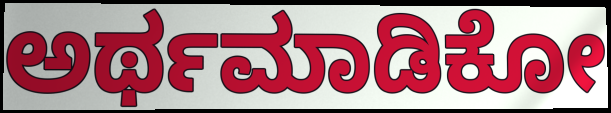
ಅರ್ಥಮಾಡಿಕೋ